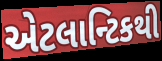
એટલાન્ટિકથી